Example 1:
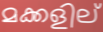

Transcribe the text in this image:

മക്കളില്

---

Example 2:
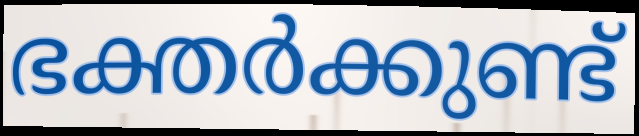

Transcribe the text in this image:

ഭക്തർക്കുണ്ട്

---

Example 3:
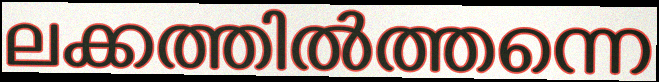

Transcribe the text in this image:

ലക്കത്തിൽത്തന്നെ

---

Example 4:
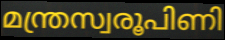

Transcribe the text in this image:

മന്ത്രസ്വരൂപിണി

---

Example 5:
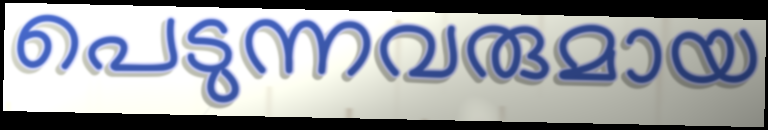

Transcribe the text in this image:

പെടുന്നവരുമായ